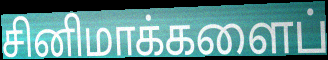
சினிமாக்களைப்